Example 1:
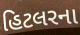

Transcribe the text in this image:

હિટલરના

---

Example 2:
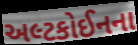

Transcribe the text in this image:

અલ્ટકોઈનના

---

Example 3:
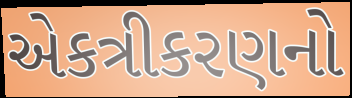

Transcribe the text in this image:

એકત્રીકરણનો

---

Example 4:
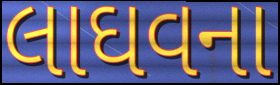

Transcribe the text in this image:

લાઘવના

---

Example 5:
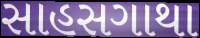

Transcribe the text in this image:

સાહસગાથા